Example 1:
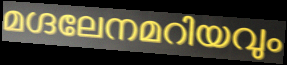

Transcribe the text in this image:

മഗ്ദലേനമറിയവും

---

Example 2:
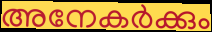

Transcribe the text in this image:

അനേകർക്കും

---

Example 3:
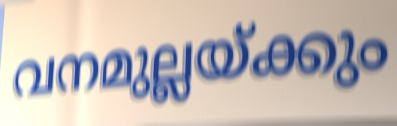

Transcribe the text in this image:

വനമുല്ലയ്ക്കും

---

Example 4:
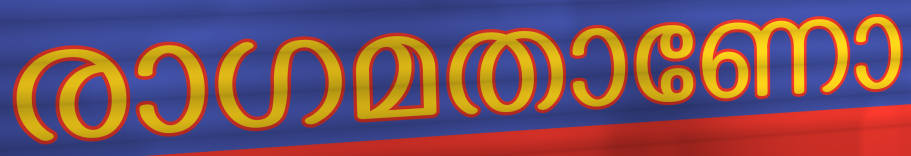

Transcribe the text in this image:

രാഗമതാണോ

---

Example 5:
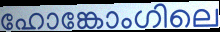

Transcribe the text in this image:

ഹോങ്കോംഗിലെ